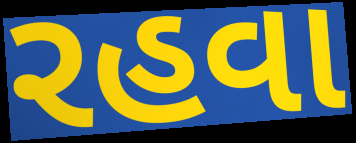
રહવા